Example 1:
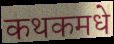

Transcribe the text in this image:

कथकमधे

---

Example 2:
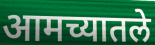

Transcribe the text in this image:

आमच्यातले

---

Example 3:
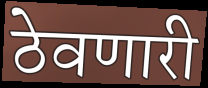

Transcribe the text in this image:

ठेवणारी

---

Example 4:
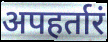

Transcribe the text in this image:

अपहर्तारं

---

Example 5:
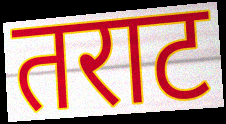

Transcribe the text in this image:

तराट